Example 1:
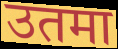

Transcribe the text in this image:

उतमा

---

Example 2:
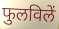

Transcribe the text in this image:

फुलविलें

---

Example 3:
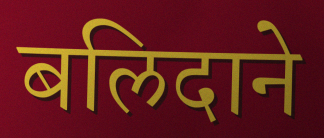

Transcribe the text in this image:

बलिदाने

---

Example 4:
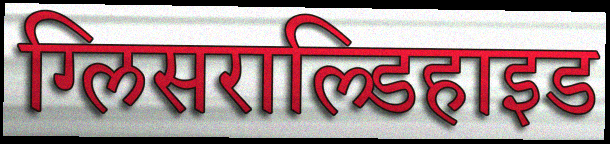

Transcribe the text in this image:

ग्लिसराल्डिहाइड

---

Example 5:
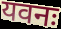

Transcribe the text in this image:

यवनः